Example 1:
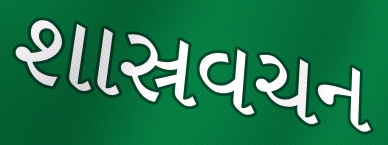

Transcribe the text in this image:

શાસ્રવચન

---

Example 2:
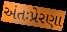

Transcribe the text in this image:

અંતઃપ્રેરણા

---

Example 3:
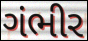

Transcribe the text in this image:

ગંભીર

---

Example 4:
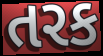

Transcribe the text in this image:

તરક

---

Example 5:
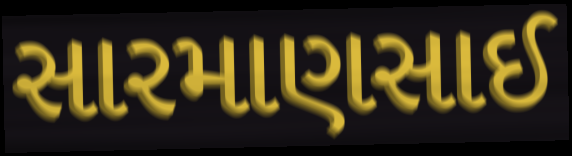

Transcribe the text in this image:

સારમાણસાઈ